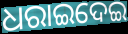
ଧରାଇଦେଇ